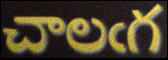
చాలఁగ